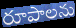
రూపాలను